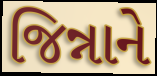
જિન્નાને